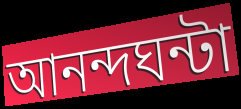
আনন্দঘন্টা